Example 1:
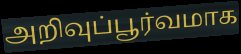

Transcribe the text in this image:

அறிவுப்பூர்வமாக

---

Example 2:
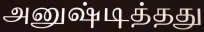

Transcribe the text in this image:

அனுஷ்டித்தது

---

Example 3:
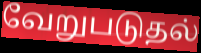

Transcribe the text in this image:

வேறுபடுதல்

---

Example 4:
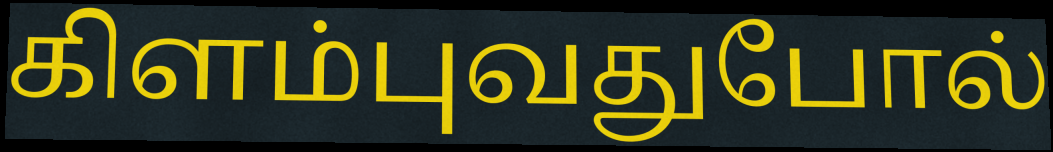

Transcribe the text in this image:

கிளம்புவதுபோல்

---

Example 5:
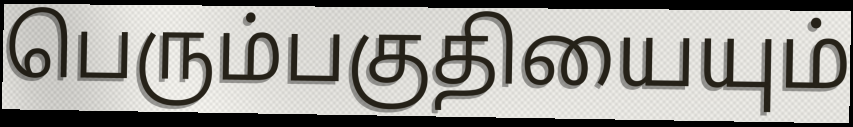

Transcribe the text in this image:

பெரும்பகுதியையும்